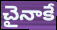
చైనాకే